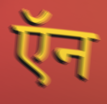
ऍन